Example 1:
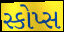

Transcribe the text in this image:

સ્કોપ્સ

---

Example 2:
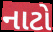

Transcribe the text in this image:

નાટો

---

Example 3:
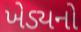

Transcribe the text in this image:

ખેડ્યનો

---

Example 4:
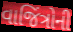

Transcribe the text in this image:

વાજિંત્રોની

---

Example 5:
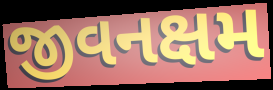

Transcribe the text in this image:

જીવનક્ષમ